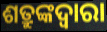
ଶତ୍ରୁଙ୍କଦ୍ୱାରା